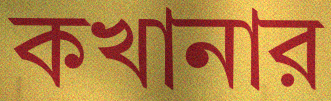
কখানার